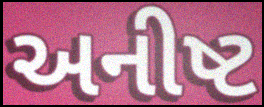
અનીષ્ટ